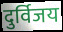
दुर्विजय